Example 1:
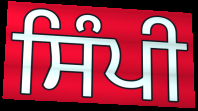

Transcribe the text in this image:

ਸਿੰਪੀ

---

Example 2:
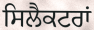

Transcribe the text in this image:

ਸਿਲੈਕਟਰਾਂ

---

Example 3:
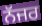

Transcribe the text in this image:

ਨੱਜਰ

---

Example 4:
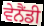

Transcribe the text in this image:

ਵੇਨੈਂਡੀ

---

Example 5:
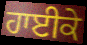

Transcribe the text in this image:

ਹਾਈਕੇ